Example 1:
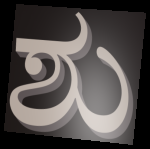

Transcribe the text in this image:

ಶು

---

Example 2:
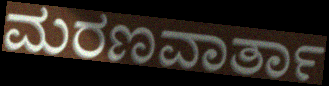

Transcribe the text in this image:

ಮರಣವಾರ್ತಾ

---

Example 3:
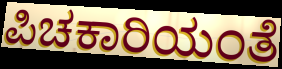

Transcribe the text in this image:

ಪಿಚಕಾರಿಯಂತೆ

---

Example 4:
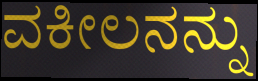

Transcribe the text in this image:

ವಕೀಲನನ್ನು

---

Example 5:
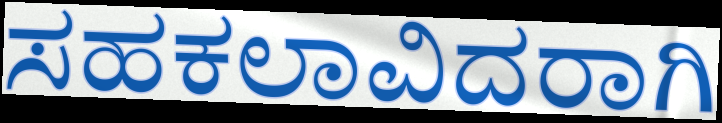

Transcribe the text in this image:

ಸಹಕಲಾವಿದರಾಗಿ